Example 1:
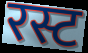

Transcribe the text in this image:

रस्ट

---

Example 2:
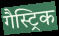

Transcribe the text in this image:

गैस्ट्रिक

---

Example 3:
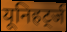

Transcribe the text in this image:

यूनिहर्ट्ज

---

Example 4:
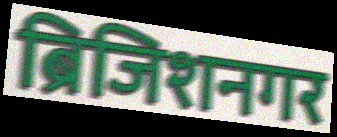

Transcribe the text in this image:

ब्रिजिशनगर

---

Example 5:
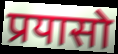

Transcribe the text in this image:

प्रयासो